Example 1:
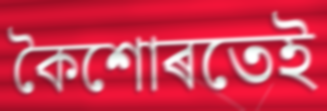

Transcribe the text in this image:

কৈশোৰতেই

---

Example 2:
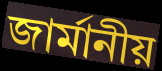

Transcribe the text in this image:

জাৰ্মানীয়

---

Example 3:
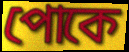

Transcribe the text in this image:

পোকে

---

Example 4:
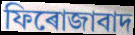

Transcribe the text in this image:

ফিৰোজাবাদ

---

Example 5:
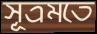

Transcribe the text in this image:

সূত্ৰমতে